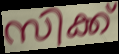
സിക്ക്